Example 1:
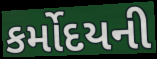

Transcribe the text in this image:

કર્મોદયની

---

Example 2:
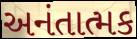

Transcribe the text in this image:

અનંતાત્મક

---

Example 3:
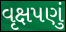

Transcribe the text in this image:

વૃક્ષપણું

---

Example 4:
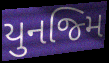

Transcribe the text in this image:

યુનજ્મિ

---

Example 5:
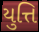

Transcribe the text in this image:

યુત્તિ